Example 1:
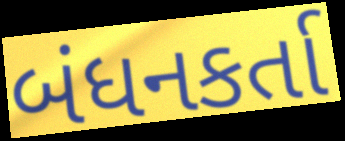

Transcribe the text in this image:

બંધનકર્તા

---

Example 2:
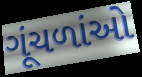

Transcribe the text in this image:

ગૂંચળાંઓ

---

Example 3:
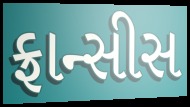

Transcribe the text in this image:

ફ્રાન્સીસ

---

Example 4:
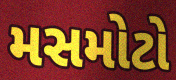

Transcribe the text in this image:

મસમોટો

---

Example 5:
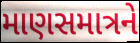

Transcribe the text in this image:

માણસમાત્રને